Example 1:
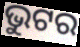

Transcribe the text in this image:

ଭୁଟର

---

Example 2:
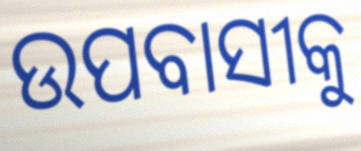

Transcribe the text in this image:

ଉପବାସୀକୁ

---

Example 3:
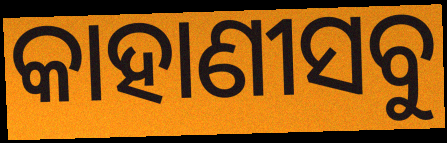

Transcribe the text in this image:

କାହାଣୀସବୁ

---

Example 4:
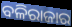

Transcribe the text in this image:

ବଳିରାଜାର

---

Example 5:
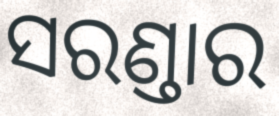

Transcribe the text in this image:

ସରଣ୍ଡାର